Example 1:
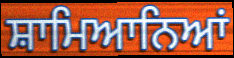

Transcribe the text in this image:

ਸ਼ਾਮਿਆਨਿਆਂ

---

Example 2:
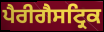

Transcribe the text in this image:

ਪੈਰੀਗੈਸਟ੍ਰਿਕ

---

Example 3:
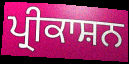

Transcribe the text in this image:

ਪ੍ਰੀਕਾਸ਼ਨ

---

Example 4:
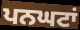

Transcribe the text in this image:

ਪਨਘਟਾਂ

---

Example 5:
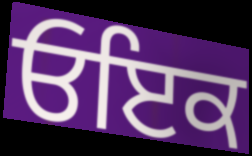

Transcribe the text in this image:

ਓਇਕ